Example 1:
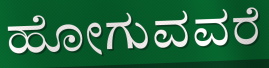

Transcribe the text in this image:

ಹೋಗುವವರೆ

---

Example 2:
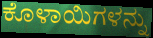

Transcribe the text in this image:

ಕೊಳಾಯಿಗಳನ್ನು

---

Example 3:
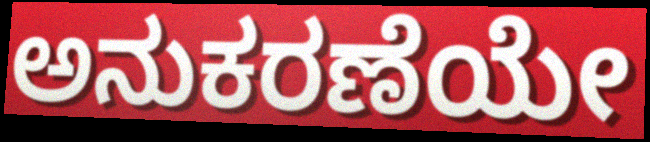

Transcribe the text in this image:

ಅನುಕರಣೆಯೇ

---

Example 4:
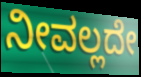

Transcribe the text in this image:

ನೀವಲ್ಲದೇ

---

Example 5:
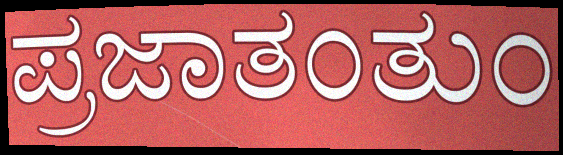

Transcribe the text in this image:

ಪ್ರಜಾತಂತುಂ